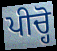
ਪੀਚ੍ਹੋ